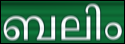
ബലിം